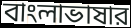
বাংলাভাষার